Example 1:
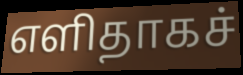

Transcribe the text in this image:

எளிதாகச்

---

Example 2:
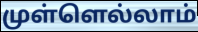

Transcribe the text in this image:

முள்ளெல்லாம்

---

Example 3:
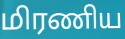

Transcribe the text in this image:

மிரணிய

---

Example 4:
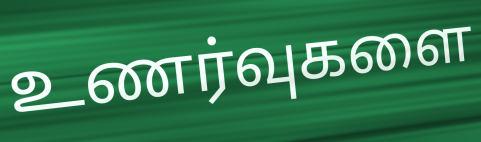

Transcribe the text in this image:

உணர்வுகளை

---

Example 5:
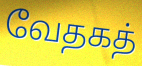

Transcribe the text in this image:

வேதகத்